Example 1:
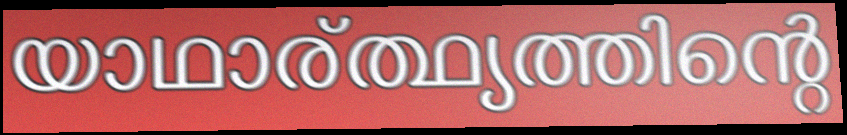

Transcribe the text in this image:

യാഥാര്ത്ഥ്യത്തിന്റെ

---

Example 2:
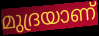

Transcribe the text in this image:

മുദ്രയാണ്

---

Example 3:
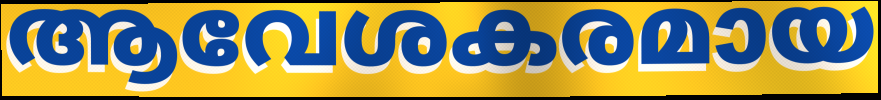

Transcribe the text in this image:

ആവേശകരമായ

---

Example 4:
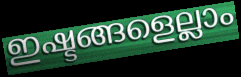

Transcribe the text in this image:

ഇഷ്ടങ്ങളെല്ലാം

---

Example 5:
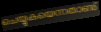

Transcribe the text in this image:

ചെയ്യുകയെന്നതാണു്